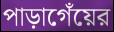
পাড়াগেঁয়ের